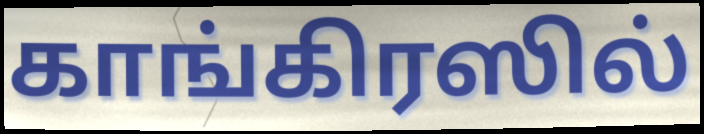
காங்கிரஸில்